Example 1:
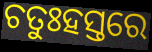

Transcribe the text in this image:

ଚତୁଃହସ୍ତରେ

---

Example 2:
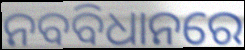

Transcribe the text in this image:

ନବବିଧାନରେ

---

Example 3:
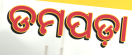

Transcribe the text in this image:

ଡମପଡ଼ା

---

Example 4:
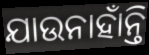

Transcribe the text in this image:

ଯାଉନାହାଁନ୍ତି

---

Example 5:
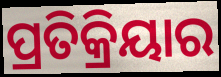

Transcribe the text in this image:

ପ୍ରତିକ୍ରିୟାର